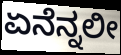
ಏನೆನ್ನಲೀ